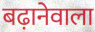
बढ़ानेवाला